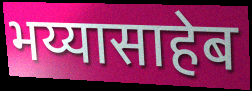
भय्यासाहेब